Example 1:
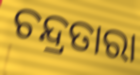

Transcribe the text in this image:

ଚନ୍ଦ୍ରତାରା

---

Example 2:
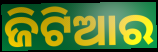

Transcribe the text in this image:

ଜିଟିଆର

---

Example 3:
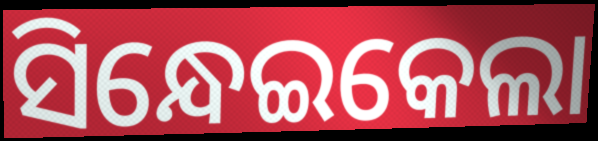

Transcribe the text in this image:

ସିନ୍ଧେଇକେଲା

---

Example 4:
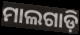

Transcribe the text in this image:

ମାଲଗାଡ଼ି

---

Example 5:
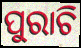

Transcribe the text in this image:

ପୁରାଚି